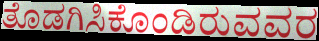
ತೊಡಗಿಸಿಕೊಂಡಿರುವವರ